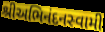
શ્રીઅભિનંદનસ્વામી